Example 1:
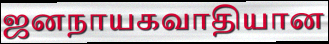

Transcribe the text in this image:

ஜனநாயகவாதியான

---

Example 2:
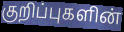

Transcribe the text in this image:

குறிப்புகளின்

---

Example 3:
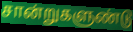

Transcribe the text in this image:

சான்றுகளுண்டு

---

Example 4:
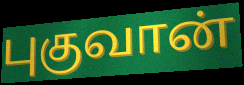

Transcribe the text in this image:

புகுவான்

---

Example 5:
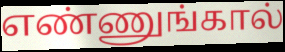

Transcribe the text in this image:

எண்ணுங்கால்